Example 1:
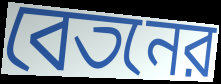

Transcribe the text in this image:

বেতনের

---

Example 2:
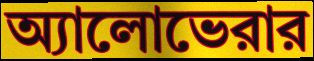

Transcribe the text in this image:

অ্যালোভেরার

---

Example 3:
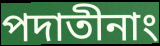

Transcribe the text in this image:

পদাতীনাং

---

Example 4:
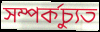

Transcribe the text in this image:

সম্পর্কচ্যুত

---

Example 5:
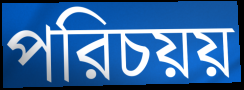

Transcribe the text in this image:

পরিচয়য়